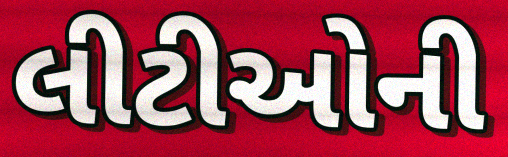
લીટીઓની